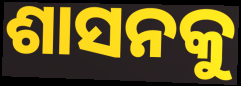
ଶାସନକୁ